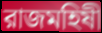
রাজমহিষী